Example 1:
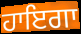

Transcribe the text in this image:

ਹਾਇਗਾ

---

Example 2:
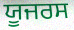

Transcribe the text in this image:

ਯੂਜਰਸ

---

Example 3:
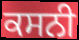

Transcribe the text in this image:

ਕਸਨੀ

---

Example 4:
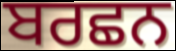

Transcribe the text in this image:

ਬਰਛਨ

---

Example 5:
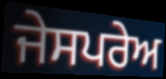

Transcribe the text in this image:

ਜੇਸਪਰੇਅ